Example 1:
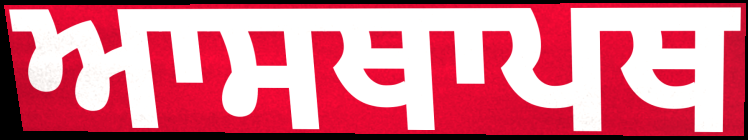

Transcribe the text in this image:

ਆਸਥਾਪਥ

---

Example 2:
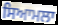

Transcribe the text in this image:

ਸਿਆਮਲਾ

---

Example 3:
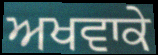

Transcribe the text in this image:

ਅਖਵਾਕੇ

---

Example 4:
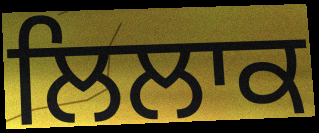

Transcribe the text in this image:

ਲਿਲਾਕ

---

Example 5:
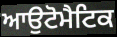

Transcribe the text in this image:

ਆਉਟੋਮੈਟਿਕ